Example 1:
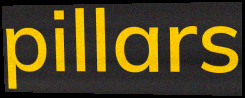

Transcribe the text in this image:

pillars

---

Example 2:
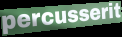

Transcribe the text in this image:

percusserit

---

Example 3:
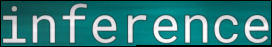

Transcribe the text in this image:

inference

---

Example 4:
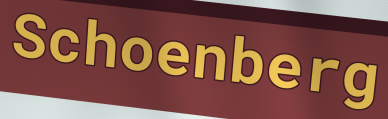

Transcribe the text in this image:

Schoenberg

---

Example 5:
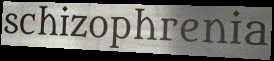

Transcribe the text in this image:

schizophrenia